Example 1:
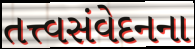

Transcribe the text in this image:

તત્ત્વસંવેદનના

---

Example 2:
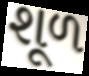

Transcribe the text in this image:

શૂળ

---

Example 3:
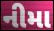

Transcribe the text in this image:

નીમા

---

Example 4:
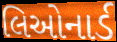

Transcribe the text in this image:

લિઓનાર્ડ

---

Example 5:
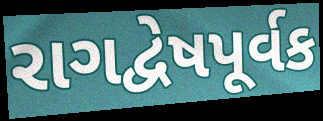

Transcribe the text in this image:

રાગદ્વેષપૂર્વક